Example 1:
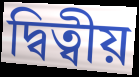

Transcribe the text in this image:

দ্বিত্বীয়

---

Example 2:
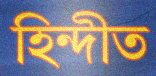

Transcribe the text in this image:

হিন্দীত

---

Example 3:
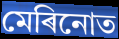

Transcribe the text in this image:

মেৰিনোত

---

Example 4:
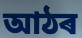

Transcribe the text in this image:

আঠৰ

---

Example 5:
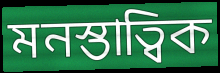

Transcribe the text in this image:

মনস্তাত্বিক